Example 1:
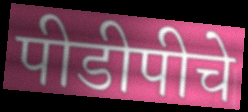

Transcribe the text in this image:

पीडीपीचे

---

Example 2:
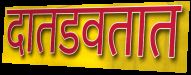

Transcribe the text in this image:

दातडवतात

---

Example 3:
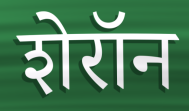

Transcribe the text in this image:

शेरॉन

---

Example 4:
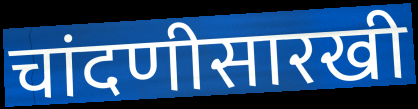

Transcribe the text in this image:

चांदणीसारखी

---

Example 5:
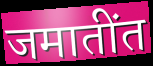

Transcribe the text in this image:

जमातींत